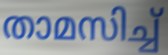
താമസിച്ച്